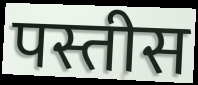
पस्तीस